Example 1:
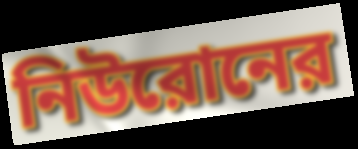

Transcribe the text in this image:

নিউরোনের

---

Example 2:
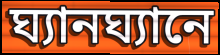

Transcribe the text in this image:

ঘ্যানঘ্যানে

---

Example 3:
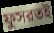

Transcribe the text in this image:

ফুসরতই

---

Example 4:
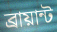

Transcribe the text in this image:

ব্রায়ান্ট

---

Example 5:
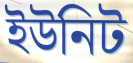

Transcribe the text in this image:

ইউনিট